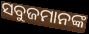
ସବୁଜମାନଙ୍କ